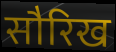
सौरिख